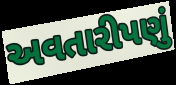
અવતારીપણું